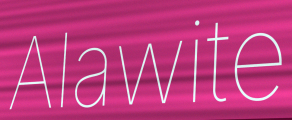
Alawite